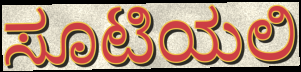
ಸೂಟಿಯಲಿ